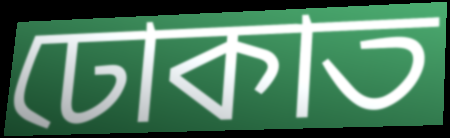
ঢোকাত